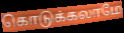
கொடுக்கலாமே